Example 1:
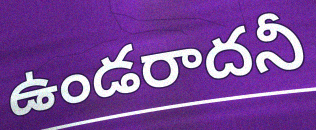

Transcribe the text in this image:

ఉండరాదనీ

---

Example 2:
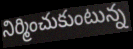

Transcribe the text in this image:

నిర్మించుకుంటున్న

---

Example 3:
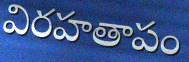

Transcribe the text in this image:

విరహతాపం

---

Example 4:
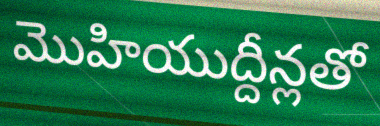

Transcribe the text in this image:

మొహియుద్దీన్లతో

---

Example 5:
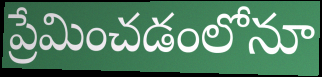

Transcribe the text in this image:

ప్రేమించడంలోనూ